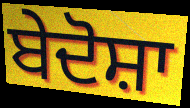
ਬੇਦੋਸ਼ਾ